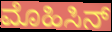
ಮೊಹಿಸಿನ್